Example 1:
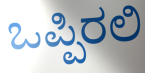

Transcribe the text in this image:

ಒಪ್ಪಿರಲಿ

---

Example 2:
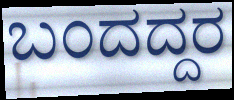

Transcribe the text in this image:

ಬಂದದ್ದರ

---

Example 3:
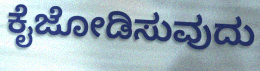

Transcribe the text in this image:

ಕೈಜೋಡಿಸುವುದು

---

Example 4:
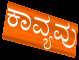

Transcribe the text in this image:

ಕಾವ್ಯವು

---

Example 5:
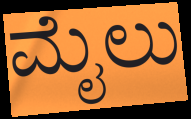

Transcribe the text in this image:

ಮೈಲು